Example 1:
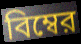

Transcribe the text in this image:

বিম্বের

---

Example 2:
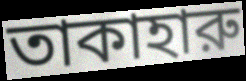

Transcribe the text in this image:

তাকাহারু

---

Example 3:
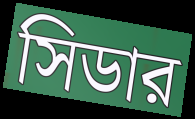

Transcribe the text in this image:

সিডার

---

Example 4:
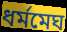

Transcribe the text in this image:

ধর্মমেঘ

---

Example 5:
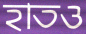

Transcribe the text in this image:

হাতও